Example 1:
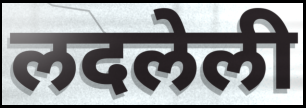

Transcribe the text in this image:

लदलेली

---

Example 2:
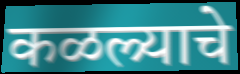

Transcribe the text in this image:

कळल्याचे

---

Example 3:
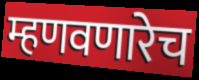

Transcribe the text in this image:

म्हणवणारेच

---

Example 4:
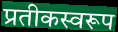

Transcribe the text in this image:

प्रतीकस्वरूप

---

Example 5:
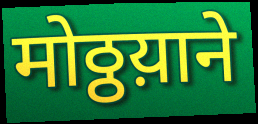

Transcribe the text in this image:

मोठ्ठय़ाने